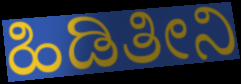
ಹಿಡಿತೀನಿ